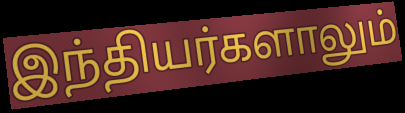
இந்தியர்களாலும்